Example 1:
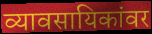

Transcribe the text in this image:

व्यावसायिकांवर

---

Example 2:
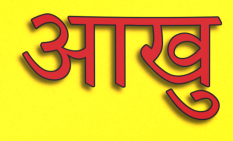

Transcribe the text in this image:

आखु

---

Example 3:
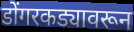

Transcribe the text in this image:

डोंगरकड्यावरून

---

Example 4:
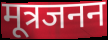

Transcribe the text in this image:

मूत्रजनन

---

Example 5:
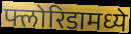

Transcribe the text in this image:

फ्लोरिडामध्ये